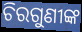
ଚିରଗୁଣୀଙ୍କ